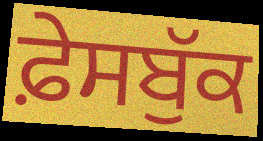
ਫ਼ੇਸਬੁੱਕ